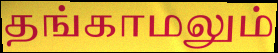
தங்காமலும்